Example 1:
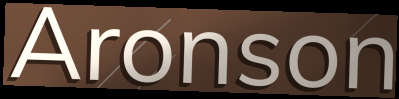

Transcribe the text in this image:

Aronson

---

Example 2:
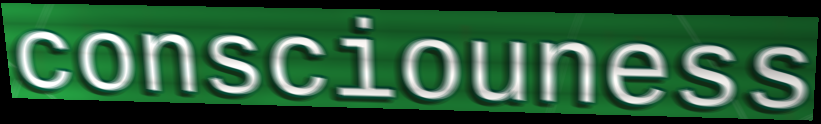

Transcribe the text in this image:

consciouness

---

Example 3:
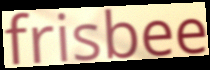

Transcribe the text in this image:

frisbee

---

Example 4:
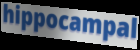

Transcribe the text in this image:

hippocampal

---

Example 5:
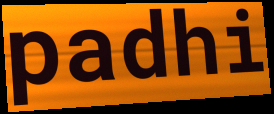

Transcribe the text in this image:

padhi